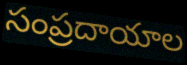
సంప్రదాయాల